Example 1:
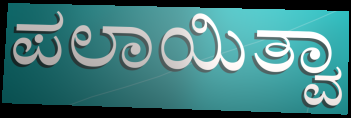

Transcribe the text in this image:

ಪಲಾಯಿತ್ವಾ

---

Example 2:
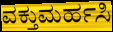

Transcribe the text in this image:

ವಕ್ತುಮರ್ಹಸಿ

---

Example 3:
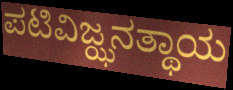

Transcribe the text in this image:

ಪಟಿವಿಜ್ಝನತ್ಥಾಯ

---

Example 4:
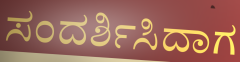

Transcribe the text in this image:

ಸಂದರ್ಶಿಸಿದಾಗ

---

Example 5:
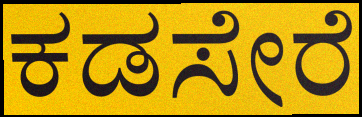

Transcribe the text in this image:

ಕಡಸೇರೆ